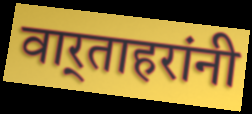
वार्ताहरांनी